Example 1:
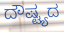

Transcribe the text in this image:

ದೌಷ್ಟ್ಯದ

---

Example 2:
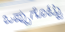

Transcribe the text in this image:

ಒಪ್ಪುಗೊಟ್ಟು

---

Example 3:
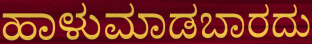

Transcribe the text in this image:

ಹಾಳುಮಾಡಬಾರದು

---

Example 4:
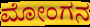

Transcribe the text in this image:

ಮೋಂಗನ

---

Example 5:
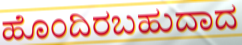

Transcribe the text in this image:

ಹೊಂದಿರಬಹುದಾದ